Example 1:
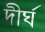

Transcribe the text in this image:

দীৰ্ঘ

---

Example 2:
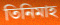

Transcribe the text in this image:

তিনিমাহ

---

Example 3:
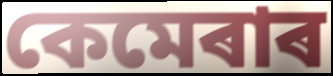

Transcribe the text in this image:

কেমেৰাৰ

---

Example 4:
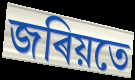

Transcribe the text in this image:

জৰিয়তে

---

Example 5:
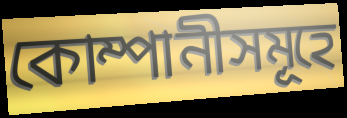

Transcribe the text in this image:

কোম্পানীসমূহে